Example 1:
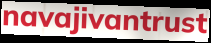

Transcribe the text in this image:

navajivantrust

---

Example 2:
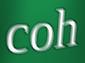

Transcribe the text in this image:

coh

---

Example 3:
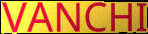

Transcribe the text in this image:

VANCHI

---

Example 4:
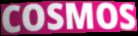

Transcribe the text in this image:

COSMOS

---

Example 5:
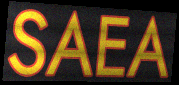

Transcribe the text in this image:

SAEA